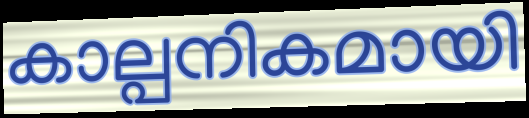
കാല്പനികമായി